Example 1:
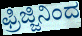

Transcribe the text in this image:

ಫ್ರಿಜ್ಜಿನಿಂದ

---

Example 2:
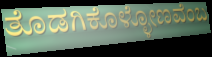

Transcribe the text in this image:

ತೊಡಗಿಕೊಳ್ಳೋಣವೆಂಬ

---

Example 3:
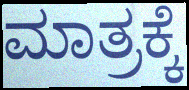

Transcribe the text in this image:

ಮಾತ್ರಕ್ಕೆ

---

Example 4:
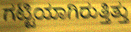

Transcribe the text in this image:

ಗಟ್ಟಿಯಾಗಿರುತ್ತಿತ್ತು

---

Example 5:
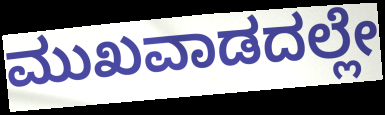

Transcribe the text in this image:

ಮುಖವಾಡದಲ್ಲೇ